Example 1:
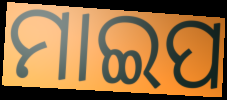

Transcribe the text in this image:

ମାଇପ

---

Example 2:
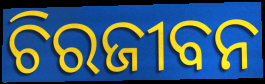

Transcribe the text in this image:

ଚିରଜୀବନ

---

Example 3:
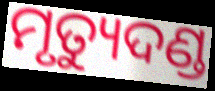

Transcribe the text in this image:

ମୃତ୍ୟୁଦଣ୍ଡ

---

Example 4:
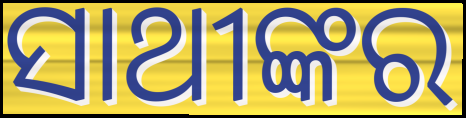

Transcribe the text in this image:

ସାଥୀଙ୍କର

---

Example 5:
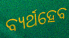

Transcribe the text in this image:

ବ୍ୟର୍ଥହେବ